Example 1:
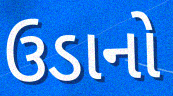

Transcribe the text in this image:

ઉડાનો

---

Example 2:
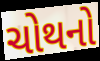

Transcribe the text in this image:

ચોથનો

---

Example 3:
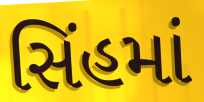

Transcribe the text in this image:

સિંહમાં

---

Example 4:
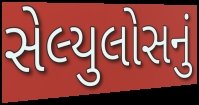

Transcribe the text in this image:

સેલ્યુલોસનું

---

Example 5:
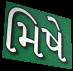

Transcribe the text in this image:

મિષે